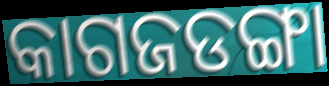
କାଗଜଡଙ୍ଗା